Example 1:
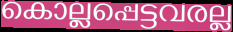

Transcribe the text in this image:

കൊല്ലപ്പെട്ടവരല്ല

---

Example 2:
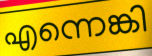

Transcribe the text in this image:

എന്നെങ്കി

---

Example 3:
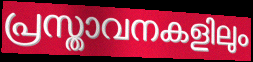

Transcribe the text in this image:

പ്രസ്താവനകളിലും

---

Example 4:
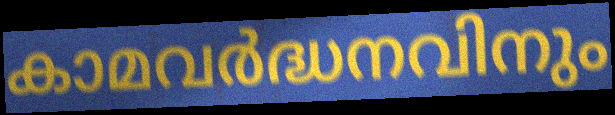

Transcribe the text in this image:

കാമവർദ്ധനവിനും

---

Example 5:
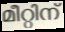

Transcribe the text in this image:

മീറ്റിന്